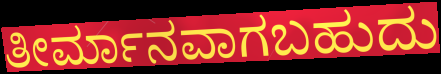
ತೀರ್ಮಾನವಾಗಬಹುದು